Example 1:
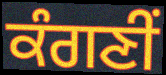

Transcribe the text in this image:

ਕੰਗਣੀਂ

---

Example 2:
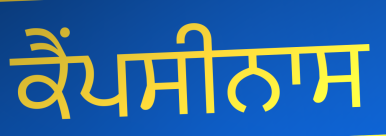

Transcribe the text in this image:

ਕੈਂਪਸੀਨਾਸ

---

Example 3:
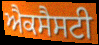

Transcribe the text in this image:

ਐਕਸੈਸਟੀ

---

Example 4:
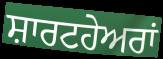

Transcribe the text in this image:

ਸ਼ਾਰਟਹੇਅਰਾਂ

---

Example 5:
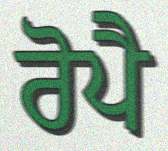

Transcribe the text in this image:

ਰੋਪੈ